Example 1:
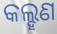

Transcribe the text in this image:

କଲ୍ହଣ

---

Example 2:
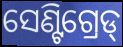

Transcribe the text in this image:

ସେଣ୍ଟିଗ୍ରେଡ୍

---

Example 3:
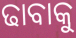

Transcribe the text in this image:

ଢାବାକୁ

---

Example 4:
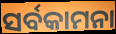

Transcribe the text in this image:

ସର୍ବକାମନା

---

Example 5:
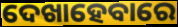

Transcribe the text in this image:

ଦେଖାହେବାରେ